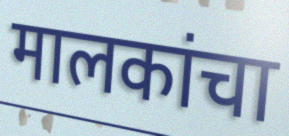
मालकांचा